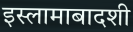
इस्लामाबादशी